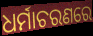
ଧର୍ମାଚରଣରେ